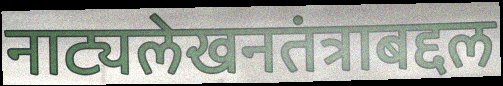
नाट्यलेखनतंत्राबद्दल